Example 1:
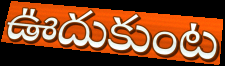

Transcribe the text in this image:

ఊదుకుంట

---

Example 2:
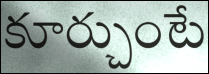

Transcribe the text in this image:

కూర్చుంటే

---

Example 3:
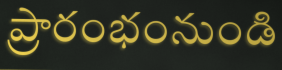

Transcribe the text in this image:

ప్రారంభంనుండి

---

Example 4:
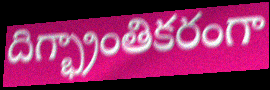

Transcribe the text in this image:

దిగ్భ్రాంతికరంగా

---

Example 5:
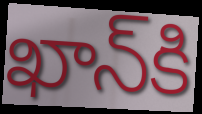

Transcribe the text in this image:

ఖాన్‌కి